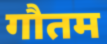
गौतम